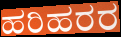
ಹರಿಹರರ